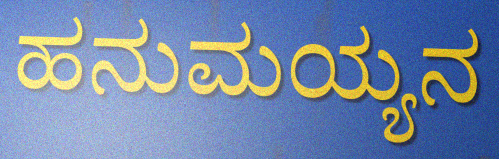
ಹನುಮಯ್ಯನ